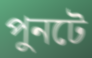
পুনটে